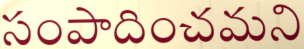
సంపాదించమని